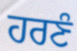
ਹਰਣੰ